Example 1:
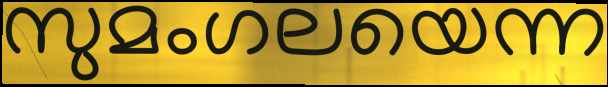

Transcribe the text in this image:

സുമംഗലയെന്ന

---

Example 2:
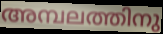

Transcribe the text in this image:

അമ്പലത്തിനു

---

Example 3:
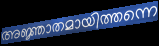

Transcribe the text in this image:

അജ്ഞാതമായിത്തന്നെ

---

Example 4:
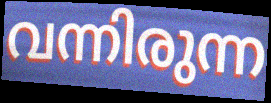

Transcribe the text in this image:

വന്നിരുന്ന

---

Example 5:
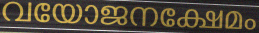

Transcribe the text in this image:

വയോജനക്ഷേമം